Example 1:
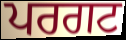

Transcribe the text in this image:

ਪਰਗਟ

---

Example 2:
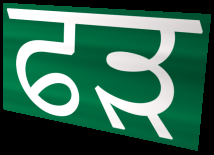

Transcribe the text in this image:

ਫੜ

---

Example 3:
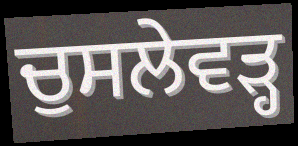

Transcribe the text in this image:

ਚੁਸਲੇਵੜ੍ਹ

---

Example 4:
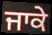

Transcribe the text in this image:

ਜਾਕੇ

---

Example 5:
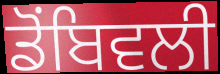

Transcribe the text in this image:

ਡੋਂਬਿਵਲੀ